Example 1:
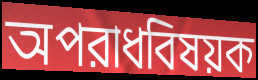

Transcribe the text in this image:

অপরাধবিষয়ক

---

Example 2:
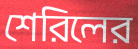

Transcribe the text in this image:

শেরিলের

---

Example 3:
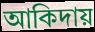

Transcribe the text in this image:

আকিদায়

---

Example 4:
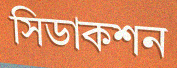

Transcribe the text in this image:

সিডাকশন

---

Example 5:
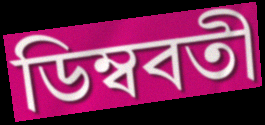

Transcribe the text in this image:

ডিম্ববতী